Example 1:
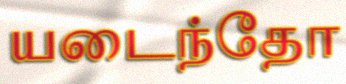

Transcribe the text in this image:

யடைந்தோ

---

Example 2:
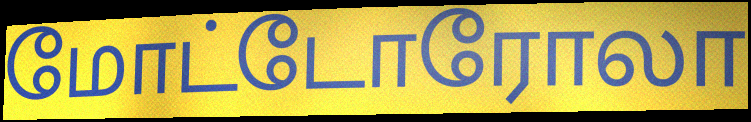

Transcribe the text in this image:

மோட்டோரோலா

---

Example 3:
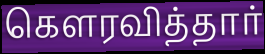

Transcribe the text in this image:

கௌரவித்தார்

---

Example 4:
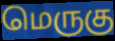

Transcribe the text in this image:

மெருகு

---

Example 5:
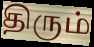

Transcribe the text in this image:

திரும்